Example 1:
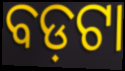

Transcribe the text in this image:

ବଡ଼ଟା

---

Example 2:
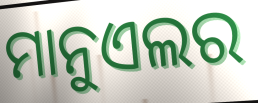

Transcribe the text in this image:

ମାନୁଏଲର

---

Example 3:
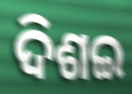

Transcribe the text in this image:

ଦିଶଇ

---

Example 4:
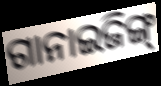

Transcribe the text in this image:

ଗାନାଇଜିଙ୍ଗ୍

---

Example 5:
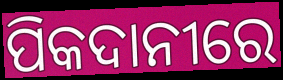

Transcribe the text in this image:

ପିକଦାନୀରେ